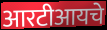
आरटीआयचे